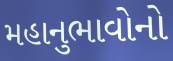
મહાનુભાવોનો